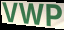
VWP